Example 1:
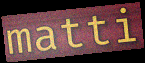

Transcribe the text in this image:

matti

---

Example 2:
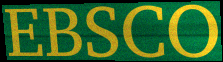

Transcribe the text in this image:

EBSCO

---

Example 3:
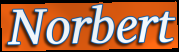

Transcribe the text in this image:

Norbert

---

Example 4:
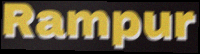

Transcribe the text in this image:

Rampur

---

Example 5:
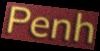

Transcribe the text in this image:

Penh